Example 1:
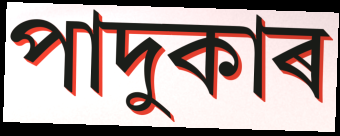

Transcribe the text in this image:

পাদুকাৰ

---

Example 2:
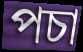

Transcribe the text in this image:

পচা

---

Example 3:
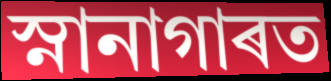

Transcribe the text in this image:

স্নানাগাৰত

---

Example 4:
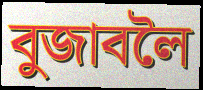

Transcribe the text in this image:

বুজাবলৈ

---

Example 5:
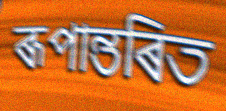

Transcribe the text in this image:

ৰূপান্তৰিত